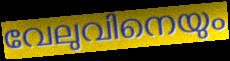
വേലുവിനെയും